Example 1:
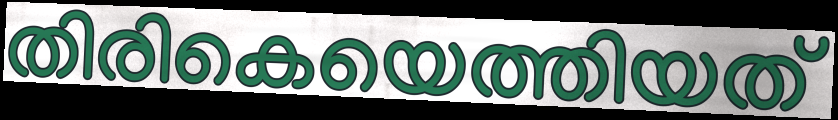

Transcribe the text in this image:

തിരികെയെത്തിയത്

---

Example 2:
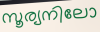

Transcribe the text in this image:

സൂര്യനിലോ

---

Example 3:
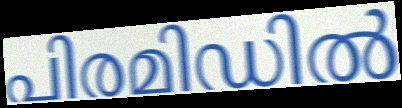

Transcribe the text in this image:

പിരമിഡിൽ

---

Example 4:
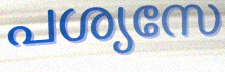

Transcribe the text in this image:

പശ്യസേ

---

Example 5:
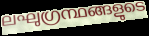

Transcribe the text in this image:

ലഘുഗ്രന്ഥങ്ങളുടെ